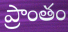
ప్రాంతం